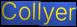
Collyer